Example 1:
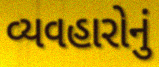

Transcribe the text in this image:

વ્યવહારોનું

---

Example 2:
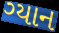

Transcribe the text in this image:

ગ્યાન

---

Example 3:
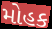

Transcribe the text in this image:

મોહક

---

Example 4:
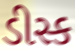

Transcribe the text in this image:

ડીસ્ક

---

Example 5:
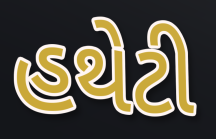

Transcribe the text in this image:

હથેટી